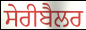
ਸੇਰੀਬੈਲਰ